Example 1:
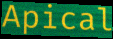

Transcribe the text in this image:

Apical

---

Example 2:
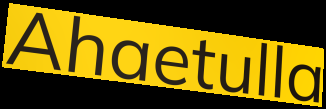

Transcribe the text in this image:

Ahaetulla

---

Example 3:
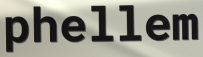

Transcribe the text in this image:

phellem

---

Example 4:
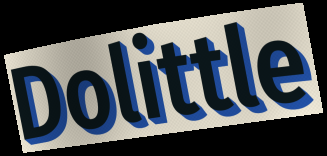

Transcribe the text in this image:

Dolittle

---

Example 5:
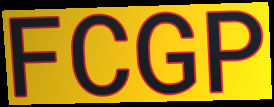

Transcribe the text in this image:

FCGP